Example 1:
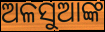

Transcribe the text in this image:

ଅଳସୁଆଙ୍କ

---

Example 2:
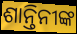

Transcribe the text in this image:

ଶାନ୍ତିନୀଙ୍କ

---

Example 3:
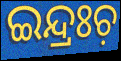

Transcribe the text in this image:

ଇନ୍ଦ୍ରଃଚ଼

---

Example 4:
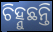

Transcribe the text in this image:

ଚିହ୍ନୁଛନ୍ତି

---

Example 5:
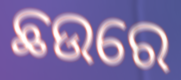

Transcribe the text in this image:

ଛଉରେ